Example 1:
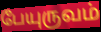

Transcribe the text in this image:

பேயுருவம்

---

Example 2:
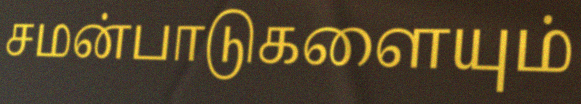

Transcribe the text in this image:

சமன்பாடுகளையும்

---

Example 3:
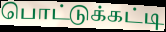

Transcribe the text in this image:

பொட்டுக்கட்டி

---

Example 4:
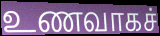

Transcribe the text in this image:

உணவாகச்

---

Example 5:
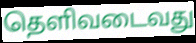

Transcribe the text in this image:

தெளிவடைவது